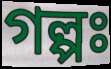
গল্পঃ